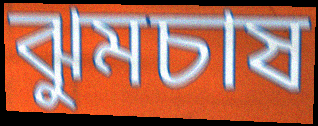
ঝুমচাষ